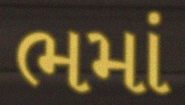
ભમાં